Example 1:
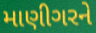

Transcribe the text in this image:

માણીગરને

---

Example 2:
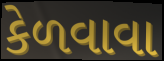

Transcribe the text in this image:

કેળવાવા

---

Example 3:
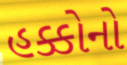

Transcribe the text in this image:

હક્કોનો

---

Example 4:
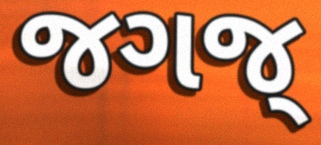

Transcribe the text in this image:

જગજ્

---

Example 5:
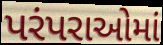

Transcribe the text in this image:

પરંપરાઓમાં